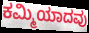
ಕಮ್ಮಿಯಾದವು